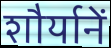
शौर्यानें